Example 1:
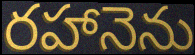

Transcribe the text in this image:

రహానెను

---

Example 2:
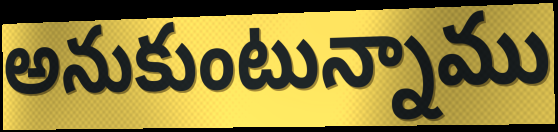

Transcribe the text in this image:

అనుకుంటున్నాము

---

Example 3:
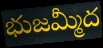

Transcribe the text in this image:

భుజమ్మీద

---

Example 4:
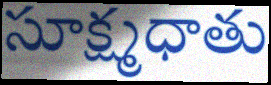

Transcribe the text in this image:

సూక్ష్మధాతు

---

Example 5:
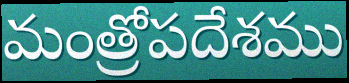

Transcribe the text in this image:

మంత్రోపదేశము